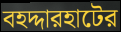
বহদ্দারহাটের